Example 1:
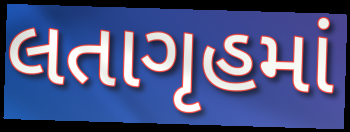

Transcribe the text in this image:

લતાગૃહમાં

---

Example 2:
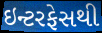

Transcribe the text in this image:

ઇન્ટરફેસથી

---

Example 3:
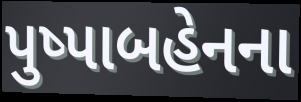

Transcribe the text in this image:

પુષ્પાબહેનના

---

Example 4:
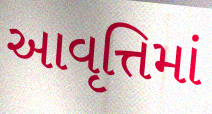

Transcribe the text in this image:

આવૃત્તિમાં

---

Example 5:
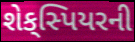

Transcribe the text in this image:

શેક્‌સ્પિયરની